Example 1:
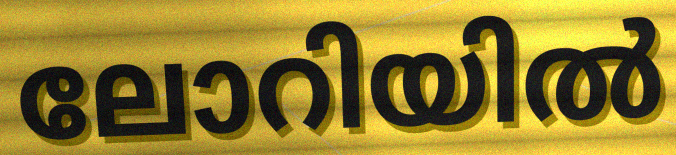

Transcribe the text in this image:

ലോറിയിൽ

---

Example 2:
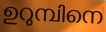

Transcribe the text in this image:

ഉറുമ്പിനെ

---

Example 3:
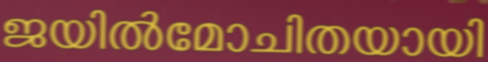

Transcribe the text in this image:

ജയിൽമോചിതയായി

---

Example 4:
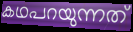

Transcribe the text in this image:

കഥപറയുന്നത്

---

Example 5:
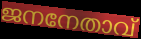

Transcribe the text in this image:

ജനനേതാവ്